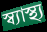
স্ব্যাস্থ্য